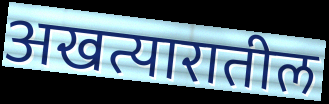
अखत्यारातील